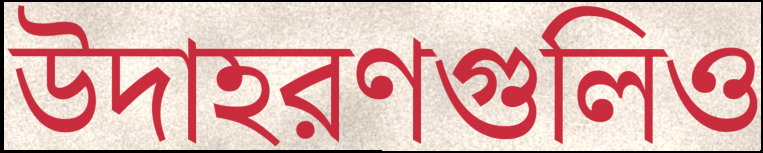
উদাহরণগুলিও